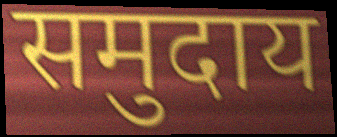
समुदाय